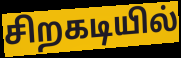
சிறகடியில்